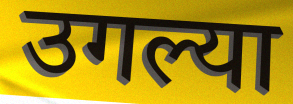
उगल्या